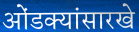
ओंडक्यांसारखे